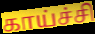
காய்ச்சி